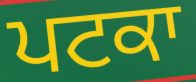
ਪਟਕਾ